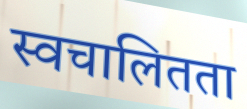
स्वचालितता